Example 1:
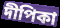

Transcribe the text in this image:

দীপিকা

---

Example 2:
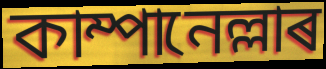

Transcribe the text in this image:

কাম্পানেল্লাৰ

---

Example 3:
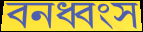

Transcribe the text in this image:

বনধ্বংস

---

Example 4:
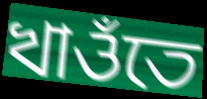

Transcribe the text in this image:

খাওঁতে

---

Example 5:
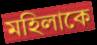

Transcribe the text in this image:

মহিলাকে